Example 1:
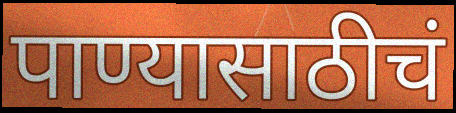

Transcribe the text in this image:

पाण्यासाठीचं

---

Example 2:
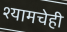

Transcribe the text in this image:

श्यामचेही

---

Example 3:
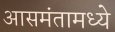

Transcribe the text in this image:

आसमंतामध्ये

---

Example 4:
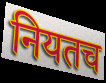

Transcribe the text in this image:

नियतच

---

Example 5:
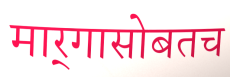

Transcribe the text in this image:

मार्गासोबतच